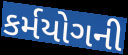
કર્મયોગની